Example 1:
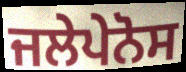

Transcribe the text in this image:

ਜਲੇਪੇਨੋਸ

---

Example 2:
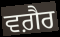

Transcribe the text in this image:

ਵਗ਼ੈਰ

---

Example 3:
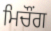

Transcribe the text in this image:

ਮਿਚੌਂਗ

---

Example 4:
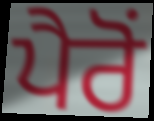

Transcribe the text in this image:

ਪੈਰੋਂ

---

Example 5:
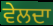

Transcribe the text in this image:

ਵੇਲਦਾ